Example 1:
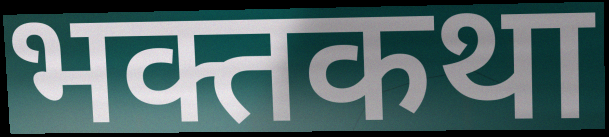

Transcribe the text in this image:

भक्तकथा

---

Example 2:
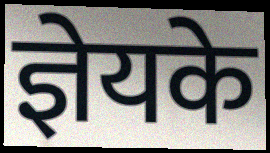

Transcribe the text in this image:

ज्ञेयके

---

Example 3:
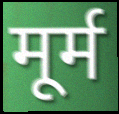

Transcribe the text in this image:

मूर्म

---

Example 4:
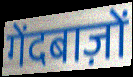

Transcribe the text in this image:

गेंदबाज़ों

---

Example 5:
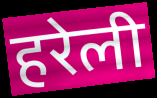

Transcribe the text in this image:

हरेली